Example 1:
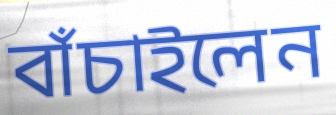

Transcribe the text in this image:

বাঁচাইলেন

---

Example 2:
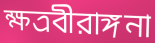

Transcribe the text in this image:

ক্ষত্রবীরাঙ্গনা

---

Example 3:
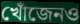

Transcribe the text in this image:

খোঁজেনও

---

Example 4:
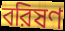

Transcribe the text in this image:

বরিষণ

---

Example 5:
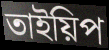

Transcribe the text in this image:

তাইয়িপ